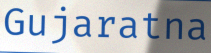
Gujaratna